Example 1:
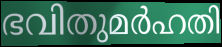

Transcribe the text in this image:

ഭവിതുമർഹതി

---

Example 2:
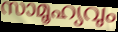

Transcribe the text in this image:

സാമൂഹ്യവും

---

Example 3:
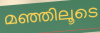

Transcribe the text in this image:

മഞ്ഞിലൂടെ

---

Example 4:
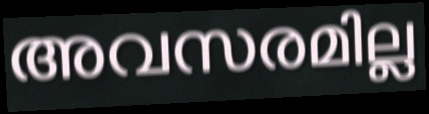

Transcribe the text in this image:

അവസരമില്ല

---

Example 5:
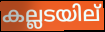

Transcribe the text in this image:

കല്ലടയില്